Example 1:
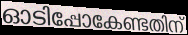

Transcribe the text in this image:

ഓടിപ്പോകേണ്ടതിന്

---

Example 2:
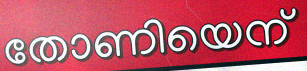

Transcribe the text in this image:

തോണിയെന്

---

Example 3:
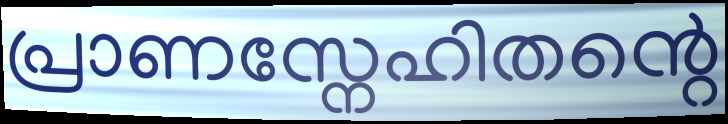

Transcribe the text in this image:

പ്രാണസ്നേഹിതന്റെ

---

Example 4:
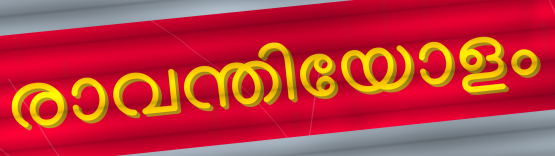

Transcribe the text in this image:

രാവന്തിയോളം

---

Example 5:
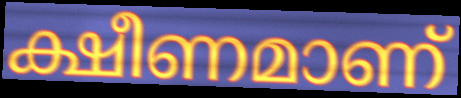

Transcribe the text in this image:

ക്ഷീണമാണ്